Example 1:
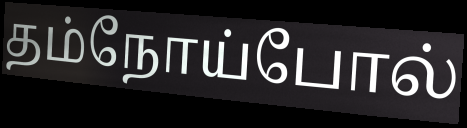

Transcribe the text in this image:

தம்நோய்போல்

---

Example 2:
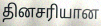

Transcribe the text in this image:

தினசரியான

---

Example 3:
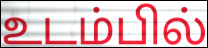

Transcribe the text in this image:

உடம்பில்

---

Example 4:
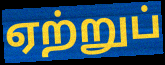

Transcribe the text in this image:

ஏற்றுப்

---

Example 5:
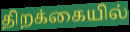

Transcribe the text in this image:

திறக்கையில்